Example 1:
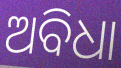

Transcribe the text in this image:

ଅବିଧା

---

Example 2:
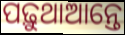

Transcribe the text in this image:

ପଢ଼ୁଥାଆନ୍ତେ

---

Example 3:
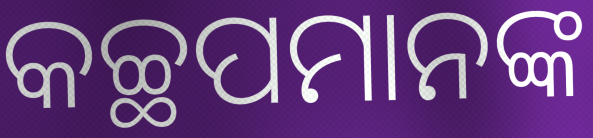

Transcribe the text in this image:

କଚ୍ଛପମାନଙ୍କ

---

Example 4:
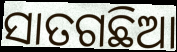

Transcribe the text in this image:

ସାତଗଛିଆ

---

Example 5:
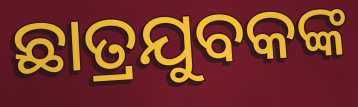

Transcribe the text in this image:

ଛାତ୍ରଯୁବକଙ୍କ